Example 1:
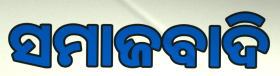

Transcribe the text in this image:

ସମାଜବାଦି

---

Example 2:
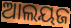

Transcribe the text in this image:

ଆଲୟଜ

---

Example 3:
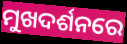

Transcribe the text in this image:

ମୁଖଦର୍ଶନରେ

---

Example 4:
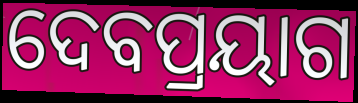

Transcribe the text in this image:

ଦେବପ୍ରୟାଗ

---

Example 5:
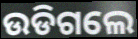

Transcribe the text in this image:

ଉଡିଗଲେ